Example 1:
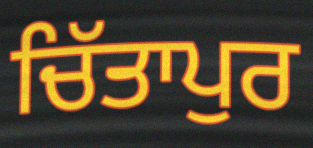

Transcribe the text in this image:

ਚਿੱਤਾਪੁਰ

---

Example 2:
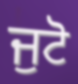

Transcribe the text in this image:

ਜੁਟੋ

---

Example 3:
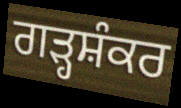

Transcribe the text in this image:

ਗੜ੍ਹਸ਼ੰਕਰ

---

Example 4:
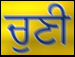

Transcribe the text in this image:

ਚੁਣੀ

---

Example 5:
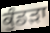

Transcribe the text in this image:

ਕੁੰਡੜਾ